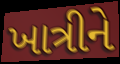
ખાત્રીને